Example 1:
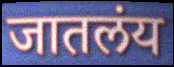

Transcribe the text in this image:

जातलंय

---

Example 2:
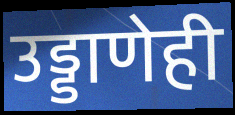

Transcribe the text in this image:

उड्डाणेही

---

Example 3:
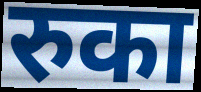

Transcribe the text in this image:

रुका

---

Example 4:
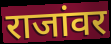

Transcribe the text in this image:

राजांवर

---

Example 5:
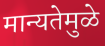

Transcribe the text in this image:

मान्यतेमुळे